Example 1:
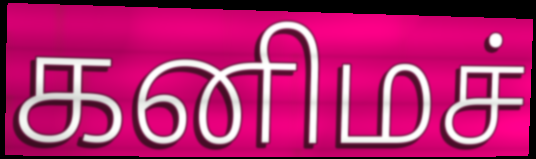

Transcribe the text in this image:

கனிமச்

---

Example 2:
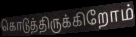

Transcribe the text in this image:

கொடுத்திருக்கிறோம்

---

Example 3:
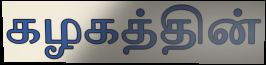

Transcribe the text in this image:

கழகத்தின்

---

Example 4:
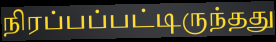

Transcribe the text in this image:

நிரப்பப்பட்டிருந்தது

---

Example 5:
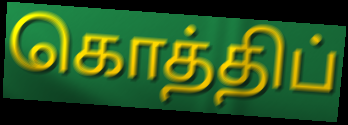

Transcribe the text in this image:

கொத்திப்